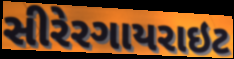
સીરેરગાયરાઇટ